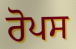
ਰੋਪਸ